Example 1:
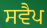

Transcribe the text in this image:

ਸਵੈਪ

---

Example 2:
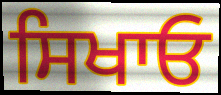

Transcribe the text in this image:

ਸਿਖਾਓ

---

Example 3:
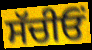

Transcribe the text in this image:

ਸੱਚੀਓਂ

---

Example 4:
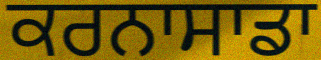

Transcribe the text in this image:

ਕਰਨਾਸਾਡਾ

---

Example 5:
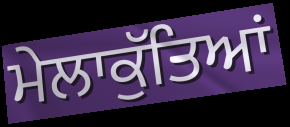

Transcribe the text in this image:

ਮੇਲਾਕੁੱਤਿਆਂ